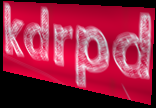
kdrpd